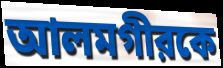
আলমগীরকে